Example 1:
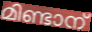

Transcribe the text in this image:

മിണ്ടാന്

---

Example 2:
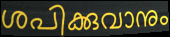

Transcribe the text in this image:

ശപിക്കുവാനും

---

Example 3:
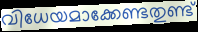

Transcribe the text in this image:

വിധേയമാക്കേണ്ടതുണ്ട്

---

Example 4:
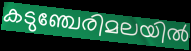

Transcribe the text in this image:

കടുഞ്ചേരിമലയിൽ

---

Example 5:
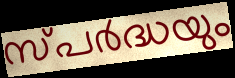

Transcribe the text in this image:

സ്പർദ്ധയും